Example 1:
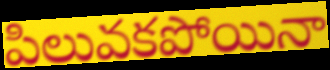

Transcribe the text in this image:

పిలువకపోయినా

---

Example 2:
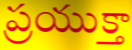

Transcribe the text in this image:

ప్రయుక్తా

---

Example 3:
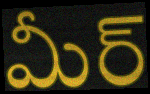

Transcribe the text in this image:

మీర్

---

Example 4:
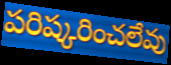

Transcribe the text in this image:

పరిష్కరించలేవు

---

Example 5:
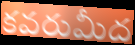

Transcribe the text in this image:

కవరుమీద